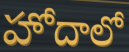
హోదాలో